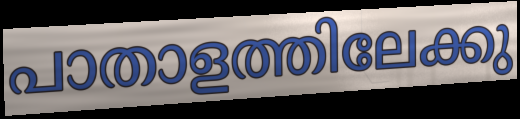
പാതാളത്തിലേക്കു